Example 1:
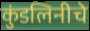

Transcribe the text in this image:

कुंडलिनीचे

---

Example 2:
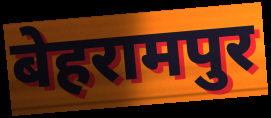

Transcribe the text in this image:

बेहरामपुर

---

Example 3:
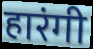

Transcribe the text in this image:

हारंगी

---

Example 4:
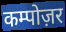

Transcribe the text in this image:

कम्पोज़र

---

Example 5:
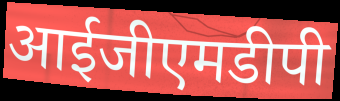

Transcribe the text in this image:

आईजीएमडीपी